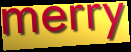
merry